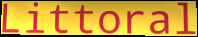
Littoral